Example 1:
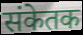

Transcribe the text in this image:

संकेतक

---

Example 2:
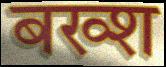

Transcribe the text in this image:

बख्श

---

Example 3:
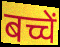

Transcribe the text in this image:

बच्चें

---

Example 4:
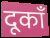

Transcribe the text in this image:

दूकाँ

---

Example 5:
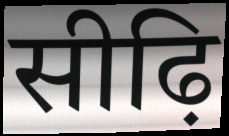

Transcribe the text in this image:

सीढ़ि